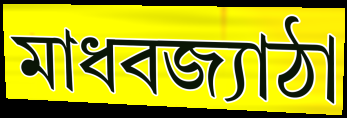
মাধবজ্যাঠা